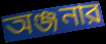
অঞ্জনার